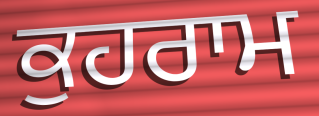
ਕੁਹਰਾਮ